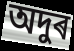
অদুৰ